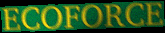
ECOFORCE